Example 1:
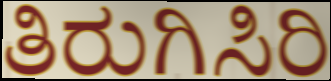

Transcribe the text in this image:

ತಿರುಗಿಸಿರಿ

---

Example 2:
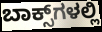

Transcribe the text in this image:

ಬಾಕ್ಸ್‌ಗಳಲ್ಲಿ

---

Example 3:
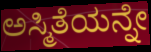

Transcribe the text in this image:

ಅಸ್ಮಿತೆಯನ್ನೇ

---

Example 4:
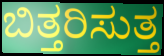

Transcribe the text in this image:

ಬಿತ್ತರಿಸುತ್ತ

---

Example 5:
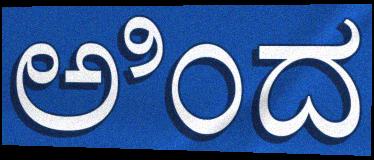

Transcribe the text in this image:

ಅಿಂದ